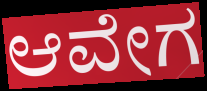
ಆವೇಗ